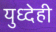
युध्देही